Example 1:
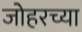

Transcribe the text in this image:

जोहरच्या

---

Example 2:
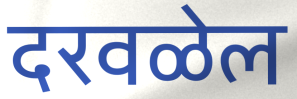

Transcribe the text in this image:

दरवळेल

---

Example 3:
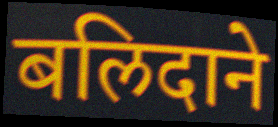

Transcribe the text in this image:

बलिदाने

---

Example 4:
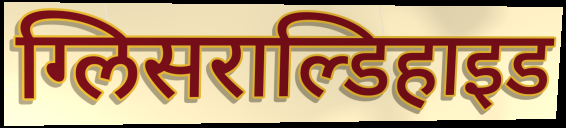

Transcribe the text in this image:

ग्लिसराल्डिहाइड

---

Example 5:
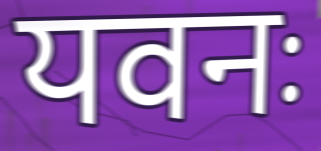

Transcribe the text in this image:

यवनः